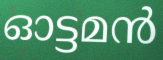
ഓട്ടമൻ